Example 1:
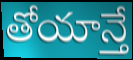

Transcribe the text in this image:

తోయాన్తే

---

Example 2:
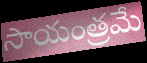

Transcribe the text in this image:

సాయంత్రమే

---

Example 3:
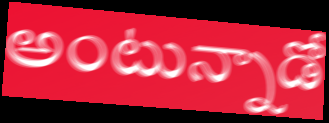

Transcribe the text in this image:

అంటున్నాడో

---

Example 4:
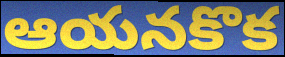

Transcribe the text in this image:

ఆయనకొక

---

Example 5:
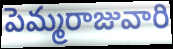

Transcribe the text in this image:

పెమ్మరాజువారి